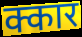
क्कार